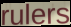
rulers